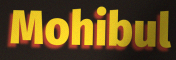
Mohibul